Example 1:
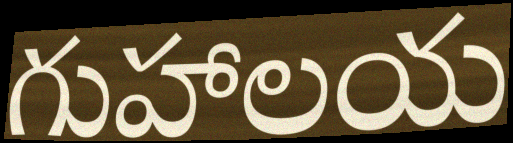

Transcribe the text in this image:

గుహాలయ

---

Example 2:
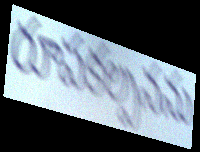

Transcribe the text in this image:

రూపకల్పనను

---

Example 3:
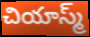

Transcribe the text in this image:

చియాస్మ్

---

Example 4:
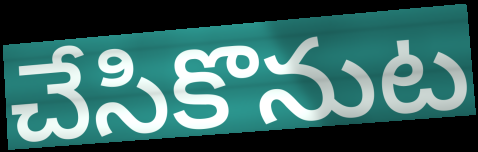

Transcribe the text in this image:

చేసికొనుట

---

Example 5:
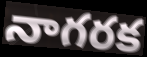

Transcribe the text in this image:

నాగరక